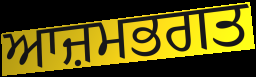
ਆਜ਼ਮਭਗਤ